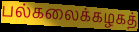
பல்கலைக்கழகத்